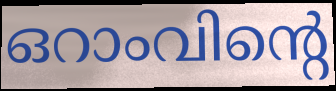
ഒറാംവിന്റെ